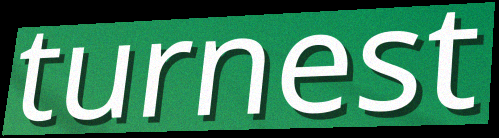
turnest